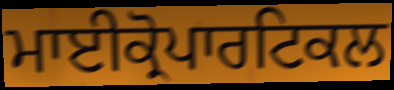
ਮਾਈਕ੍ਰੋਪਾਰਟਿਕਲ